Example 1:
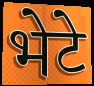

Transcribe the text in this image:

भेटे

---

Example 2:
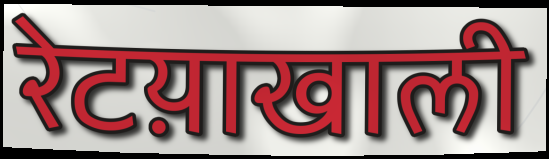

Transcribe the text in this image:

रेटय़ाखाली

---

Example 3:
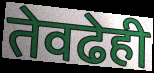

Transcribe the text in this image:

तेवढेही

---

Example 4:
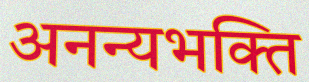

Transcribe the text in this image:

अनन्यभक्ति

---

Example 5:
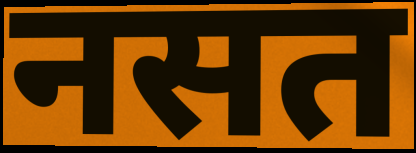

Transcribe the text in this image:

नसत